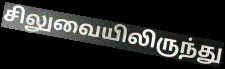
சிலுவையிலிருந்து